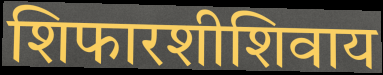
शिफारशीशिवाय